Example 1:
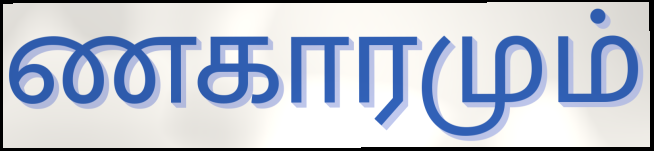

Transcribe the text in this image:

ணகாரமும்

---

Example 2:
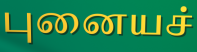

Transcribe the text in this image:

புனையச்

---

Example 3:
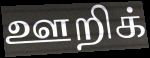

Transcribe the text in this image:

ஊறிக்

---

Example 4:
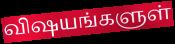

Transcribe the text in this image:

விஷயங்களுள்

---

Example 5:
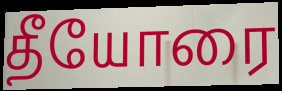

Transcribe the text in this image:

தீயோரை